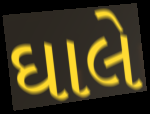
ઘાલે